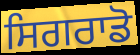
ਸਿਗਰਾਡੋ